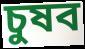
চুষব